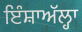
ਇੰਸ਼ਾਅੱਲ੍ਹਾ